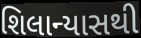
શિલાન્યાસથી